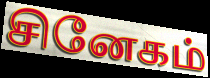
சினேகம்